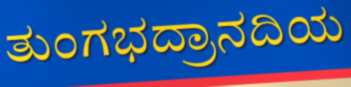
ತುಂಗಭದ್ರಾನದಿಯ